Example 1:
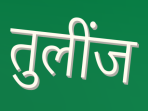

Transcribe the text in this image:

तुलींज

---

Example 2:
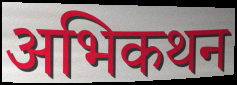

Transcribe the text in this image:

अभिकथन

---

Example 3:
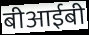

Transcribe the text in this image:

बीआईबी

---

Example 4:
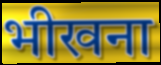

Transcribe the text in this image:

भीखना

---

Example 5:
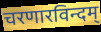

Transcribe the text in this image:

चरणारविन्दम्